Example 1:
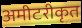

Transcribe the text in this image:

अमीटरीकृत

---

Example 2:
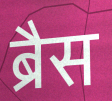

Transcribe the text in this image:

ब्रैस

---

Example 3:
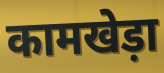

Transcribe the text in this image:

कामखेड़ा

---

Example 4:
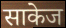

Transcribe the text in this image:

साकेज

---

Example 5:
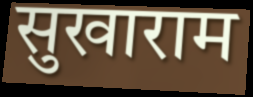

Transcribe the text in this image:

सुखाराम